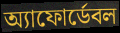
অ্যাফোর্ডেবল